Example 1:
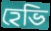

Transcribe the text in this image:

হেভি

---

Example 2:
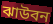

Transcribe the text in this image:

ঝাউবন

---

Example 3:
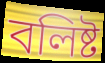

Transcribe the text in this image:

বলিষ্ট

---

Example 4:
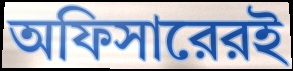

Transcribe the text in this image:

অফিসারেরই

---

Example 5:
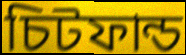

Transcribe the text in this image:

চিটফান্ড